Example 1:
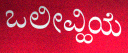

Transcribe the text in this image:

ಒಲೀವ್ಹಿಯೆ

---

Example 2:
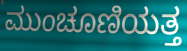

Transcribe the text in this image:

ಮುಂಚೂಣಿಯತ್ತ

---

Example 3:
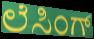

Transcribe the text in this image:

ಲೆಸಿಂಗ್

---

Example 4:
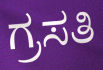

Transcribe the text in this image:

ಗ್ರಸತಿ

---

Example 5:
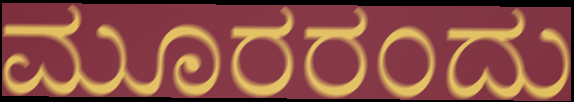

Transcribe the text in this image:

ಮೂರರಂದು